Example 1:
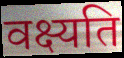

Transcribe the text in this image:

वक्ष्यति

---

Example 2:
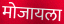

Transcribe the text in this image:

मोजायला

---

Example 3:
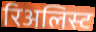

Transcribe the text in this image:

रिअलिस्ट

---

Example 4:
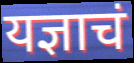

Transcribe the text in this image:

यज्ञाचं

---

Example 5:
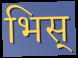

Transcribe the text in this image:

भिस्